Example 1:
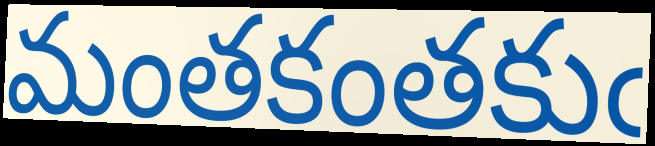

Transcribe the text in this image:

మంతకంతకుఁ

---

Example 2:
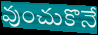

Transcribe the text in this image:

వుంచుకొనే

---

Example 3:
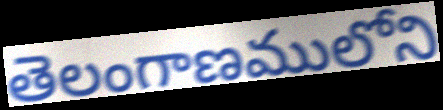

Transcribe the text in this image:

తెలంగాణములోని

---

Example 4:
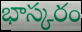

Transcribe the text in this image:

భాస్కరం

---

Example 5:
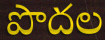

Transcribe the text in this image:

పొదల